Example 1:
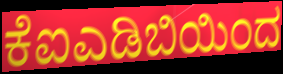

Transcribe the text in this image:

ಕೆಐಎಡಿಬಿಯಿಂದ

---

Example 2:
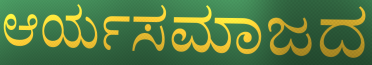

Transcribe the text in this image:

ಆರ್ಯಸಮಾಜದ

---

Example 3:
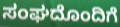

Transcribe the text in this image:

ಸಂಘದೊಂದಿಗೆ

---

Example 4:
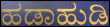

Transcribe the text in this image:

ಹಡಾಹುಡಿ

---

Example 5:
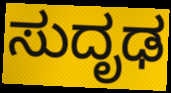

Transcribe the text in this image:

ಸುದೃಢ